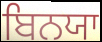
ਬਿਨਯਾ